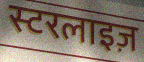
स्टरलाइज़